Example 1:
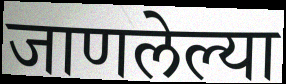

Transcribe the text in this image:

जाणलेल्या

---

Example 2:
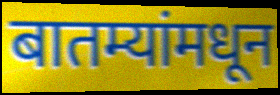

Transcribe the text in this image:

बातम्यांमधून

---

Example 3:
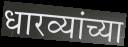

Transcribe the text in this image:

धारव्यांच्या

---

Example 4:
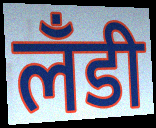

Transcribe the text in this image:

लँडी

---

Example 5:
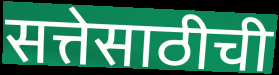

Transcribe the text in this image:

सत्तेसाठीची